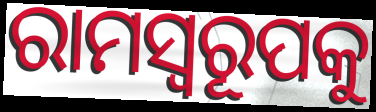
ରାମସ୍ୱରୂପକୁ